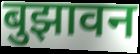
बुझावन